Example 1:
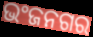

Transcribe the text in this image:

ଭଂଜନଗର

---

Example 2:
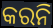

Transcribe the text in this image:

କରନି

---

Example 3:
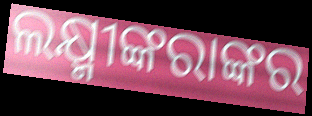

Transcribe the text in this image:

ଲକ୍ଷ୍ମୀଙ୍କରାଙ୍କର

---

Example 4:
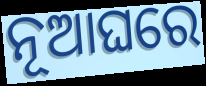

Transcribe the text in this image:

ନୂଆଘରେ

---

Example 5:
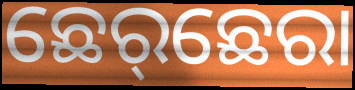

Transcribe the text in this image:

ଛେର୍‌ଛେରା